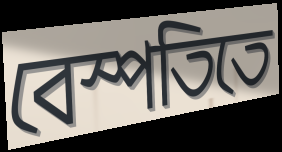
বেস্পতিতে